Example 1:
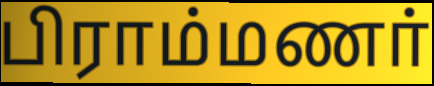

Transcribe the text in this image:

பிராம்மணர்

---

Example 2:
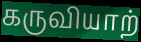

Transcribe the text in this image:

கருவியாற்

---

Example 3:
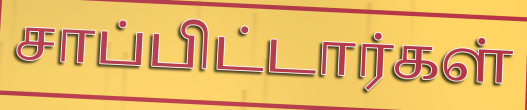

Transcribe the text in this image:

சாப்பிட்டார்கள்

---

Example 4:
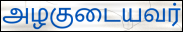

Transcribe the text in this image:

அழகுடையவர்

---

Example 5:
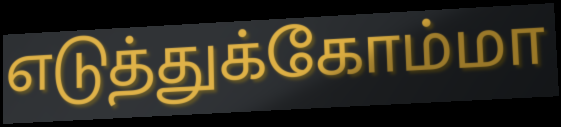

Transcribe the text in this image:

எடுத்துக்கோம்மா